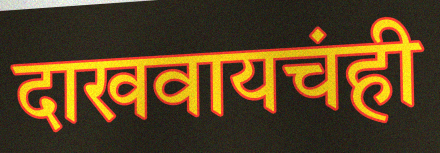
दाखवायचंही